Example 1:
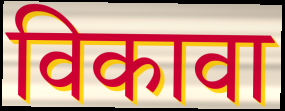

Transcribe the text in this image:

विकावा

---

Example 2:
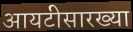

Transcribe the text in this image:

आयटीसारख्या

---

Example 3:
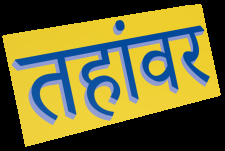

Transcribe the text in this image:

तहांवर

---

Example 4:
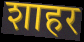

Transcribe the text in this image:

शाहर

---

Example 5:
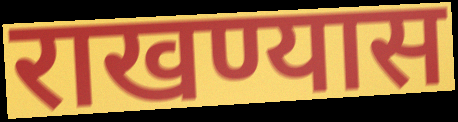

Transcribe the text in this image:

राखण्यास